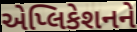
એપ્લિકેશનને